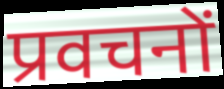
प्रवचनों